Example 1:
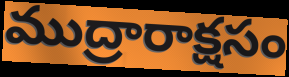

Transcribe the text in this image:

ముద్రారాక్షసం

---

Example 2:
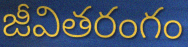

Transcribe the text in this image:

జీవితరంగం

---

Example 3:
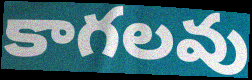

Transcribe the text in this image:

కాగలవు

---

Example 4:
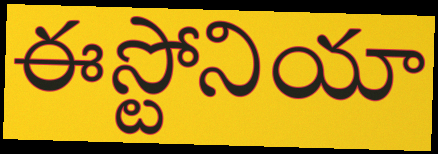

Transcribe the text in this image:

ఈస్టోనియా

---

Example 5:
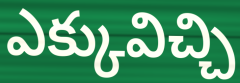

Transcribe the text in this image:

ఎక్కువిచ్చి